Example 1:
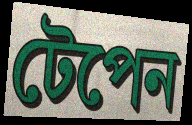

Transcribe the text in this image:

টেপেন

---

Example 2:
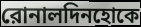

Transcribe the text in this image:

রোনালদিনহোকে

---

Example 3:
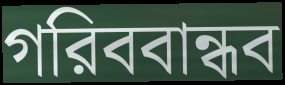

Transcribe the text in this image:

গরিববান্ধব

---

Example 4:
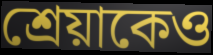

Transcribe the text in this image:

শ্রেয়াকেও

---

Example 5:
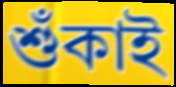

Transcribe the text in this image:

শুঁকাই